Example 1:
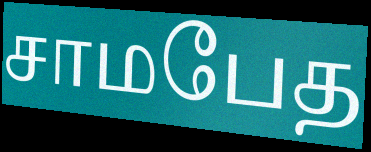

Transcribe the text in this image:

சாமபேத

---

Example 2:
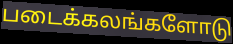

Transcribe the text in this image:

படைக்கலங்களோடு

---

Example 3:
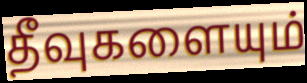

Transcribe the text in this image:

தீவுகளையும்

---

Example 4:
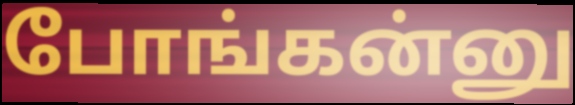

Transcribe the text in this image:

போங்கன்னு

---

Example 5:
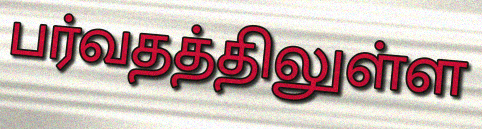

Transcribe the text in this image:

பர்வதத்திலுள்ள